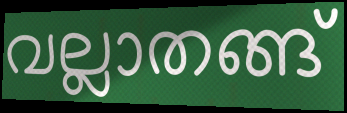
വല്ലാതങ്ങ്